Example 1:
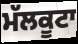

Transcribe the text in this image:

ਮੱਲਕੂਟਾ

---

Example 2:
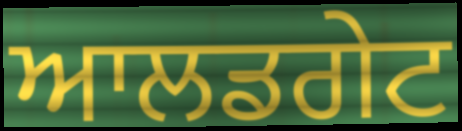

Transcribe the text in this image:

ਆਲਡਗੇਟ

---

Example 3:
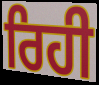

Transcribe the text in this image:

ਰਿਹੀ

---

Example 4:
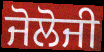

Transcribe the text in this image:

ਜੋਲੋਜੀ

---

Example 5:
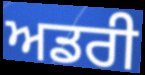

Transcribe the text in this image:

ਅਡਰੀ